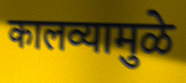
कालव्यामुळे